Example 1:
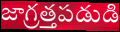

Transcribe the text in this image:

జాగ్రత్తపడుడి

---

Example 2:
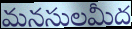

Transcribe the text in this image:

మనసులమీద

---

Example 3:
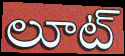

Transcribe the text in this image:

లూట్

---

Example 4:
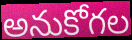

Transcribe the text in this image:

అనుకోగల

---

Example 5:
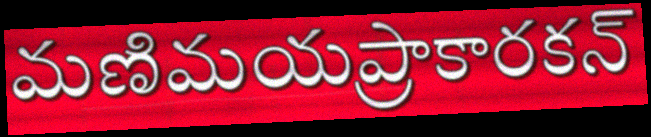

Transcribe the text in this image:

మణిమయప్రాకారకన్